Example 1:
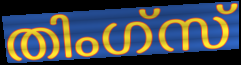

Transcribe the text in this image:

തിംഗ്സ്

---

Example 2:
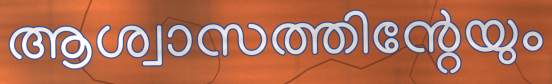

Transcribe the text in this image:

ആശ്വാസത്തിന്റേയും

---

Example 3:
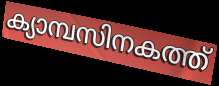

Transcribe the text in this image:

ക്യാമ്പസിനകത്ത്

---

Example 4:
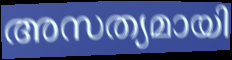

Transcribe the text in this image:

അസത്യമായി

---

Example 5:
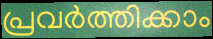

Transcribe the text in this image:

പ്രവർത്തിക്കാം